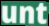
unt